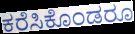
ಕರೆಸಿಕೊಂಡರೂ